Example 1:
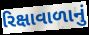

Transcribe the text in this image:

રિક્ષાવાળાનું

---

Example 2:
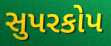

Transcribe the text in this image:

સુપરકોપ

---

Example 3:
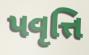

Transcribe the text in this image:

પવૃત્તિ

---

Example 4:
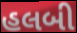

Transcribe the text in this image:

હલબી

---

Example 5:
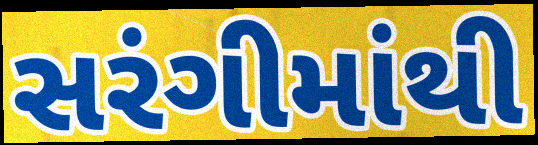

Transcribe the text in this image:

સરંગીમાંથી